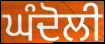
ਘੰਦੋਲੀ